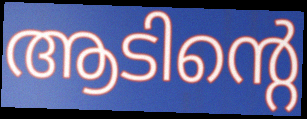
ആടിന്റെ